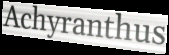
Achyranthus